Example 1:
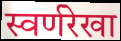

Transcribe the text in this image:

स्वर्णरेखा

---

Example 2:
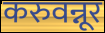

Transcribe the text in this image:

करुवन्नूर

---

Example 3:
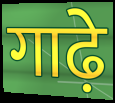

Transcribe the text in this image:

गाढ़े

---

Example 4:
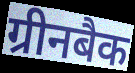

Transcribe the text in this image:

ग्रीनबैक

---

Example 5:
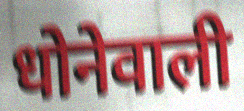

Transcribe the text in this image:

धोनेवाली